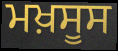
ਮਖ਼ਸੂਸ